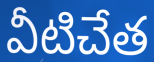
వీటిచేత